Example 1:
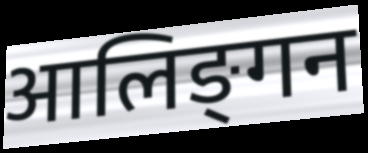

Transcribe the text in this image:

आलिङ्गन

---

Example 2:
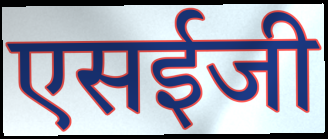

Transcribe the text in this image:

एसईजी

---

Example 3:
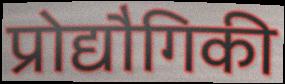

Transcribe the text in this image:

प्रोद्यौगिकी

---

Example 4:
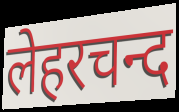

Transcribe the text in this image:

लेहरचन्द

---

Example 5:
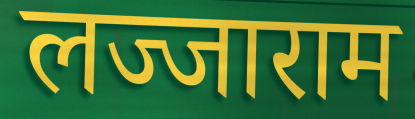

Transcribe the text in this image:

लज्जाराम